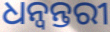
ଧନ୍ବନ୍ତରୀ